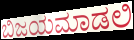
ಬಿಜಯಮಾಡಲಿ